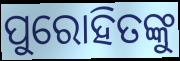
ପୁରୋହିତଙ୍କୁ